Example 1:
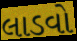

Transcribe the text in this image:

લાડવો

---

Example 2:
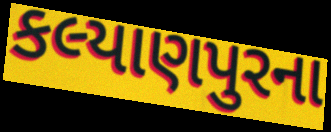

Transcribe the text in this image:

કલ્યાણપુરના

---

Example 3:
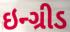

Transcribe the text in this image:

ઇન્ગ્રીડ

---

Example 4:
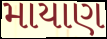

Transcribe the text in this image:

માયાણ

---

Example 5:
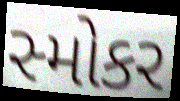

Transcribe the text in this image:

સ્મોકર